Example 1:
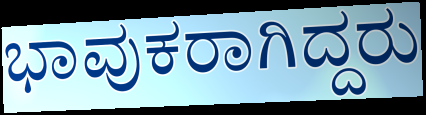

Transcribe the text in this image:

ಭಾವುಕರಾಗಿದ್ದರು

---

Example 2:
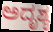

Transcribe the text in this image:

ಅದೃಶ್ಯ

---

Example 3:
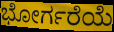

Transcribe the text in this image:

ಭೋರ್ಗರೆಯೆ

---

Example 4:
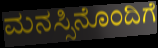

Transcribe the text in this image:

ಮನಸ್ಸಿನೊಂದಿಗೆ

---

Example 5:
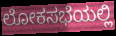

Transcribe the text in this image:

ಲೋಕಸಭೆಯಲ್ಲಿ